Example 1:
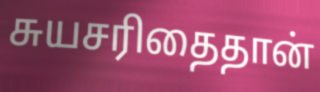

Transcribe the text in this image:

சுயசரிதைதான்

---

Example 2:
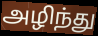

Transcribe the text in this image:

அழிந்து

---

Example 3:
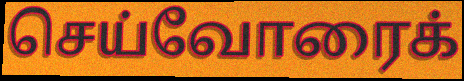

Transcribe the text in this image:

செய்வோரைக்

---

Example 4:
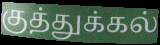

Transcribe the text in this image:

குத்துக்கல்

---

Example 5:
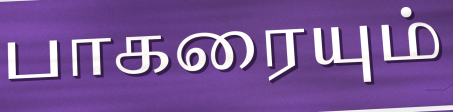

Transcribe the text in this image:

பாகரையும்